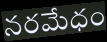
నరమేధం